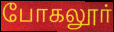
போகலூர்